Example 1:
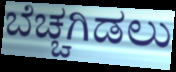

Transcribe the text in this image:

ಬೆಚ್ಚಗಿಡಲು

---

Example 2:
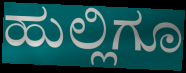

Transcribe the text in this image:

ಹುಲ್ಲಿಗೂ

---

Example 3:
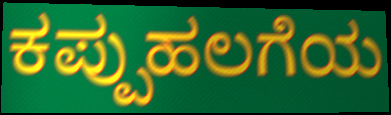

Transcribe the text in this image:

ಕಪ್ಪುಹಲಗೆಯ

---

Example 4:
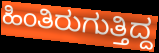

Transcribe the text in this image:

ಹಿಂತಿರುಗುತ್ತಿದ್ದ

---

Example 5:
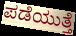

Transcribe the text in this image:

ಪಡೆಯುತ್ತೆ